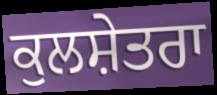
ਕੁਲਸ਼ੇਤਰਾ